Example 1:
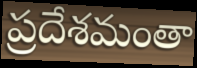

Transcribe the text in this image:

ప్రదేశమంతా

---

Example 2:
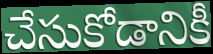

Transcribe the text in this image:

చేసుకోడానికీ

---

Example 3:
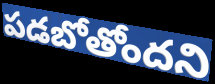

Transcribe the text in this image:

పడబోతోందని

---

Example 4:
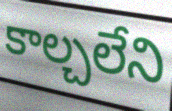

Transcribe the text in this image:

కాల్చలేని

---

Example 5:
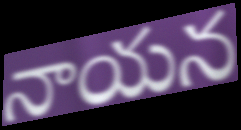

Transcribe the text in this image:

నాయన